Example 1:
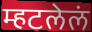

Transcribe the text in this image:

म्हटलेलं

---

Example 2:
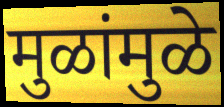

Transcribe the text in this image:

मुळांमुळे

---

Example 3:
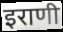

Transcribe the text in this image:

इराणी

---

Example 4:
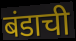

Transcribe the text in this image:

बंडाची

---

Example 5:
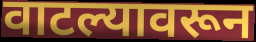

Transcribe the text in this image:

वाटल्यावरून